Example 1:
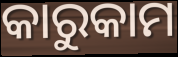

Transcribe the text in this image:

କାରୁକାମ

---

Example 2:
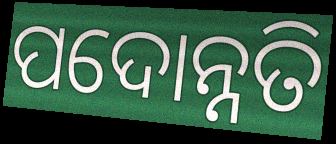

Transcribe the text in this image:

ପଦୋନ୍ନତି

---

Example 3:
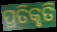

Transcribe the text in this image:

ପ୍ରତିକୃତି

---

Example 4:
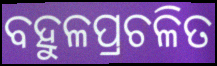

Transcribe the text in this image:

ବହୁଳପ୍ରଚଳିତ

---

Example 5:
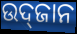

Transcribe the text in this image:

ଉଦ୍‌ଜାନ